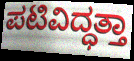
ಪಟಿವಿದ್ಧತ್ತಾ